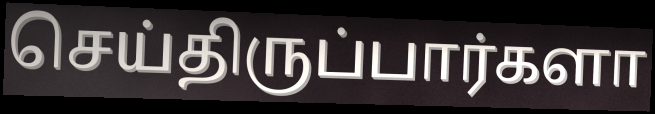
செய்திருப்பார்களா